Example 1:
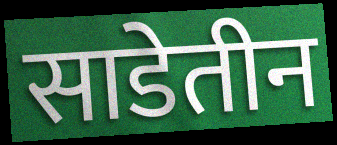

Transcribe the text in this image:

साडेतीन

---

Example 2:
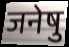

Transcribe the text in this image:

जनेषु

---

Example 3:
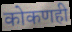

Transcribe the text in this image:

कोकणही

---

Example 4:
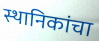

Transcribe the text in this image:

स्थानिकांचा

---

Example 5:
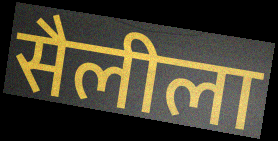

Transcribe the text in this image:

सैलीला